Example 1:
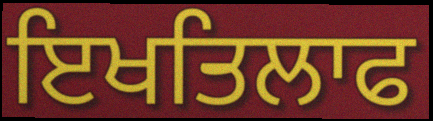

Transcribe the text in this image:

ਇਖਤਿਲਾਫ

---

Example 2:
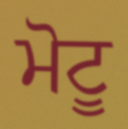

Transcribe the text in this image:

ਮੋਟੂ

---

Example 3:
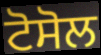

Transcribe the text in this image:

ਟੋਸੋਲ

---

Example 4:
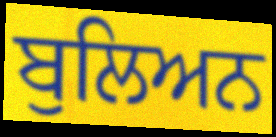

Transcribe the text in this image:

ਬੁਲਿਅਨ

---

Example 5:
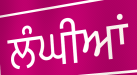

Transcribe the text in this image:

ਲੰਘੀਆਂ